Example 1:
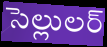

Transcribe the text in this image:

సెల్లులర్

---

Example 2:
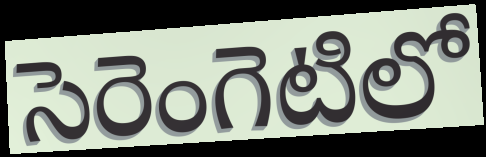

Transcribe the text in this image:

సెరెంగెటిలో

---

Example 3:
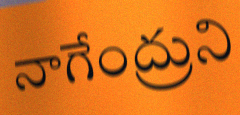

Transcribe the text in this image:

నాగేంద్రుని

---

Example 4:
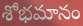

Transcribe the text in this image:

శోభమానం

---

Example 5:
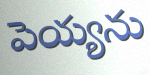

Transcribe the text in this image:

పెయ్యను